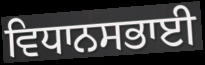
ਵਿਧਾਨਸਭਾਈ